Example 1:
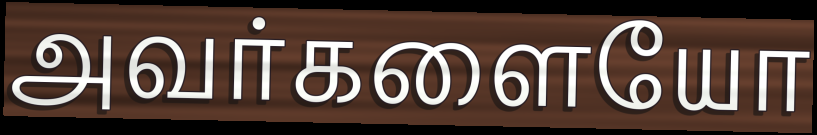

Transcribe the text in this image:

அவர்களையோ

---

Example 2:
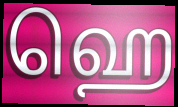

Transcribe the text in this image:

ஹெ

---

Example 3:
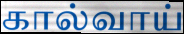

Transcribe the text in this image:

கால்வாய்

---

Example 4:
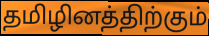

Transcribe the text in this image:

தமிழினத்திற்கும்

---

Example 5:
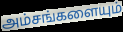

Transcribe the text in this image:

அம்சங்களையும்